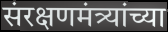
संरक्षणमंत्र्यांच्या